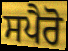
ਸਪੈਰੋ